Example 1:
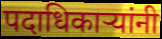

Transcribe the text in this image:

पदाधिकाऱ्यांनी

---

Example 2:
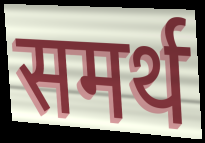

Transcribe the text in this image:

समर्थ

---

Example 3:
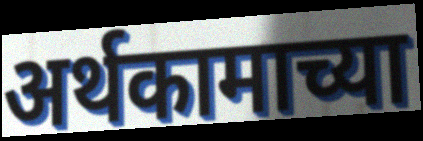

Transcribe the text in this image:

अर्थकामाच्या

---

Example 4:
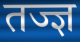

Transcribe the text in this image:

तज्ज्ञ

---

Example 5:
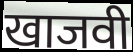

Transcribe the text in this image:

खाजवी